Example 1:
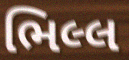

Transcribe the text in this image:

ભિલ્લ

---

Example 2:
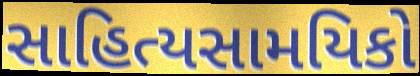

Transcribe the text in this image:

સાહિત્યસામયિકો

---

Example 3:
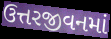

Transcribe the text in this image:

ઉત્તરજીવનમાં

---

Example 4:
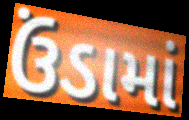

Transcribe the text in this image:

ઉંડામાં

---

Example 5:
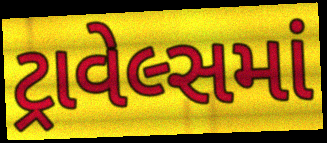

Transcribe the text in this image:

ટ્રાવેલ્સમાં